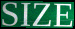
SIZE